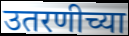
उतरणीच्या